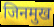
जिनमुख